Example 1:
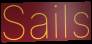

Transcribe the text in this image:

Sails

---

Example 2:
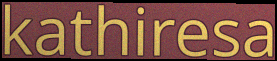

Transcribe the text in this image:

kathiresa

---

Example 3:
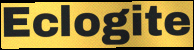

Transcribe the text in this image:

Eclogite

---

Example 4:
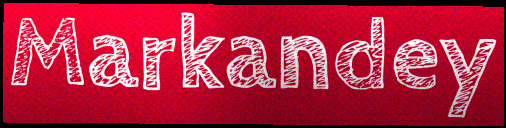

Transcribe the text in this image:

Markandey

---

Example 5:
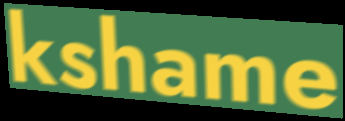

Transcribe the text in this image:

kshame